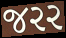
જરર